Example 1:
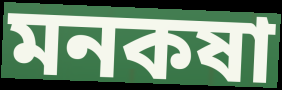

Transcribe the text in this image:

মনকষা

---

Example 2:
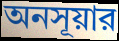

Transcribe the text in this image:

অনসূয়ার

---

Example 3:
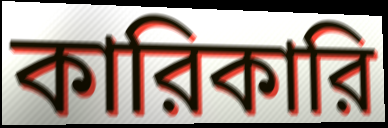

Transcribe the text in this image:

কারিকারি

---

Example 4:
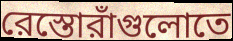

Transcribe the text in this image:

রেস্তোরাঁগুলোতে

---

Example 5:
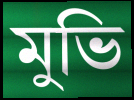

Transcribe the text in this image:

মুভি